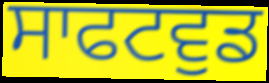
ਸਾਫਟਵੁਡ